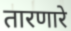
तारणारे